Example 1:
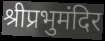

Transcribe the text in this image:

श्रीप्रभुमंदिर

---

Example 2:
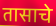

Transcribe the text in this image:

तासाचे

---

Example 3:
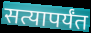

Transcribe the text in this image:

सत्यापर्यंत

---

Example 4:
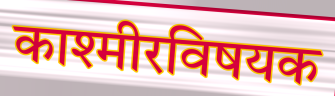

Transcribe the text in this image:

काश्मीरविषयक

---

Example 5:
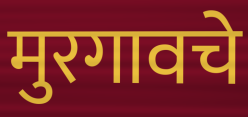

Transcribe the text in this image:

मुरगावचे